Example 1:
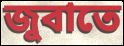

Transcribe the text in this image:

জুবাতে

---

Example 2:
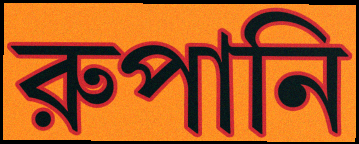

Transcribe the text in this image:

রুপানি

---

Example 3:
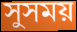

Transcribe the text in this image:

সুসময়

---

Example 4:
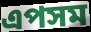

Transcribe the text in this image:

এপসম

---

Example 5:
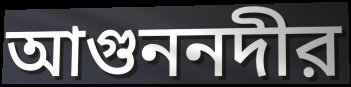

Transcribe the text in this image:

আগুননদীর